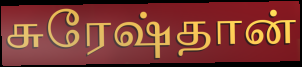
சுரேஷ்தான்